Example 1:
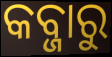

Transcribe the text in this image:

କବ୍ଜାରୁ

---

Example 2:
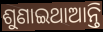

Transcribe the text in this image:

ଶୁଣାଇଥାଆନ୍ତି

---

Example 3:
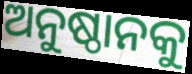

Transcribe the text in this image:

ଅନୁଷ୍ଠାନକୁ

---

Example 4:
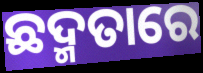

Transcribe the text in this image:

ଛଦ୍ମତାରେ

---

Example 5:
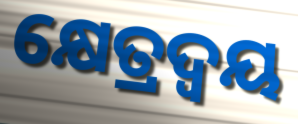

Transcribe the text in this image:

କ୍ଷେତ୍ରଦ୍ଵୟ